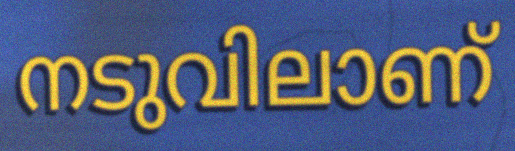
നടുവിലാണ്